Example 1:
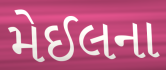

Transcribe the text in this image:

મેઈલના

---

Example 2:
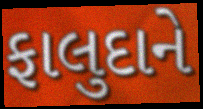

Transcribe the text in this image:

ફાલુદાને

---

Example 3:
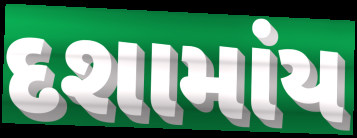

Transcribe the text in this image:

દશામાંય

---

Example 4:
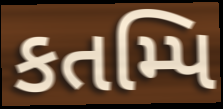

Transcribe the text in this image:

કતમ્પિ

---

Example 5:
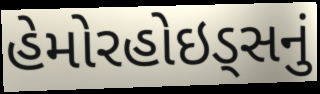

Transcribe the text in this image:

હેમોરહોઇડ્સનું